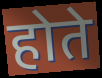
होते